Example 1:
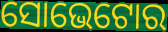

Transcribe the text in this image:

ସୋଭେଟୋର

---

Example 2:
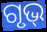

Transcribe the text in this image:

ଗୃଭ୍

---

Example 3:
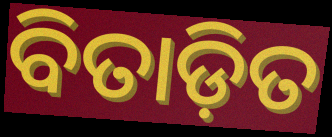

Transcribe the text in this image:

ବିତାଡ଼ିତ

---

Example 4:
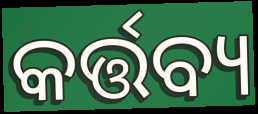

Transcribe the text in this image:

କର୍ତ୍ତବ୍ୟ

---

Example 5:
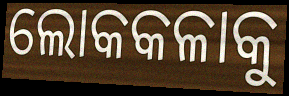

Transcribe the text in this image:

ଲୋକକଳାକୁ